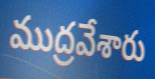
ముద్రవేశారు